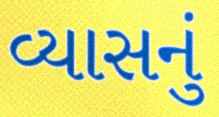
વ્યાસનું